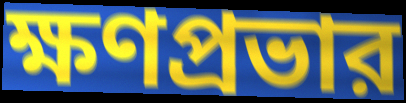
ক্ষণপ্রভার